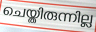
ചെയ്തിരുന്നില്ല